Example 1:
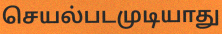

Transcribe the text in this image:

செயல்படமுடியாது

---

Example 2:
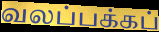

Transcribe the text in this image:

வலப்பக்கப்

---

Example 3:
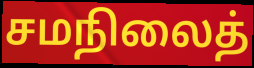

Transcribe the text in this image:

சமநிலைத்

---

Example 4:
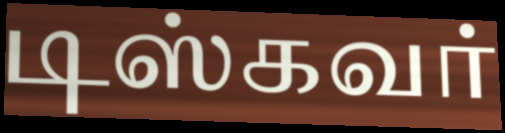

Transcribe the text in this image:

டிஸ்கவர்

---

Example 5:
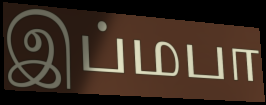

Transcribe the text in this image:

இப்மபா